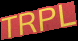
TRPL